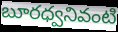
బూరధ్వనివంటి